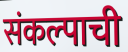
संकल्पाची